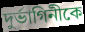
দুর্ভাগিনীকে